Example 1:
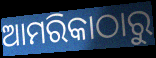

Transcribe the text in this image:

ଆମରିକାଠାରୁ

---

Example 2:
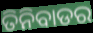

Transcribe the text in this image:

ତିନିବାଡର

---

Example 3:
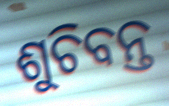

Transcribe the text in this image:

ଶୁଚିବନ୍ତ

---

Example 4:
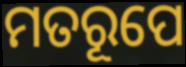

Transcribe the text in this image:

ମତରୂପେ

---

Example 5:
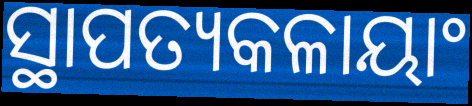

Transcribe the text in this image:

ସ୍ଥାପତ୍ୟକଳାୟାଂ